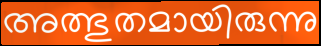
അത്ഭുതമായിരുന്നു